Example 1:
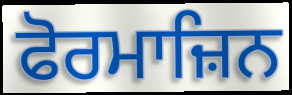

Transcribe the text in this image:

ਫੋਰਮਾਜ਼ਿਨ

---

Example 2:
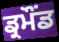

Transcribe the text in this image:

ਡ੍ਰਮੌਂਡ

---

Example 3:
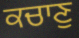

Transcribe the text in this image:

ਕਚਾਣੁ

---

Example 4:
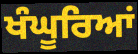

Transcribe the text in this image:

ਖੰਘੂਰਿਆਂ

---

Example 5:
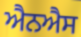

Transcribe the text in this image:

ਐਨਐਸ